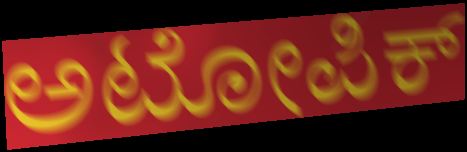
ಅಟೋಪಿಕ್